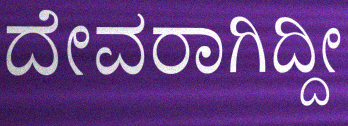
ದೇವರಾಗಿದ್ದೀ